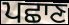
ਪਛਾਣ